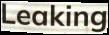
Leaking